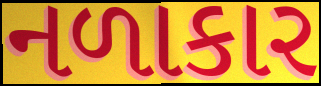
નળાકાર